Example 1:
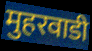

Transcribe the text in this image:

मुहरवाडी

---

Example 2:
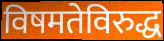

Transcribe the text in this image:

विषमतेविरुद्ध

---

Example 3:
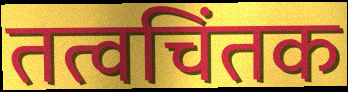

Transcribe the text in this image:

तत्वचिंतक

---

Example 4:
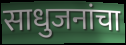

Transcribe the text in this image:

साधुजनांचा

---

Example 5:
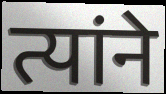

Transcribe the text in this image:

त्यांने